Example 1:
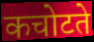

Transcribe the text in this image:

कचोटते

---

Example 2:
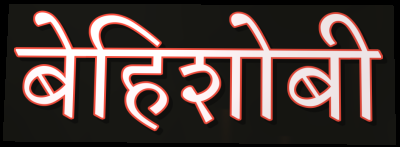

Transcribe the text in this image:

बेहिशोबी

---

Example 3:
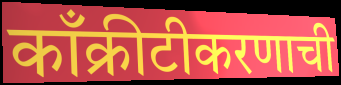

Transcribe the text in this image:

काँक्रीटीकरणाची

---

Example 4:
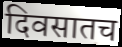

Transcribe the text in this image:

दिवसातच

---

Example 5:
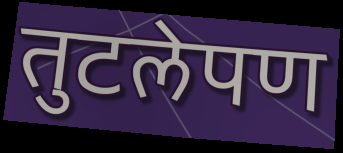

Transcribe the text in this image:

तुटलेपण